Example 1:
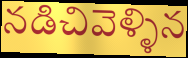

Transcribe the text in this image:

నడిచివెళ్ళిన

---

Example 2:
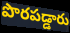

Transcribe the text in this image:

పొరపడ్డారు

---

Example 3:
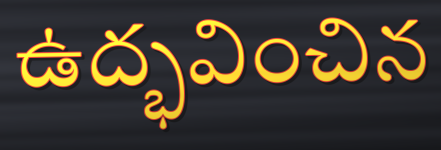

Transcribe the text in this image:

ఉద్భవించిన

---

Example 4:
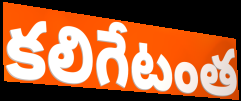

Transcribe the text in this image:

కలిగేటంత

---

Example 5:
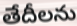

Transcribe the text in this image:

తేదీలను